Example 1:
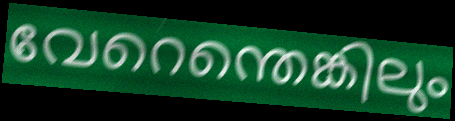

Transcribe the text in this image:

വേറെന്തെങ്കിലും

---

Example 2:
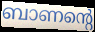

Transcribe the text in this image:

ബാണന്റെ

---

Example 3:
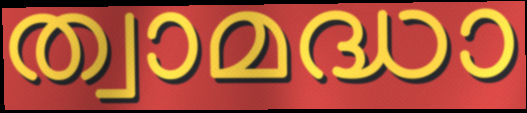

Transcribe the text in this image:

ത്വാമദ്ധാ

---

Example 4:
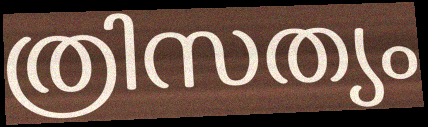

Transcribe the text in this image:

ത്രിസത്യം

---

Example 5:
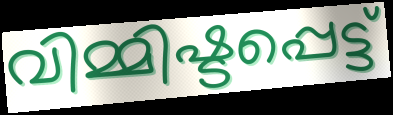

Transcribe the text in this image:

വിമ്മിഷ്ടപ്പെട്ട്